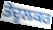
ਤੇਂਦੂਲਕਰ